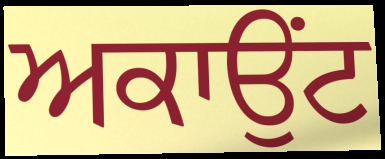
ਅਕਾਉਂਟ